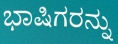
ಭಾಷಿಗರನ್ನು